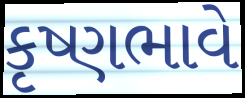
કૃષ્ણભાવે